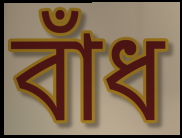
বাঁধ